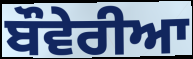
ਬੌਵੇਰੀਆ